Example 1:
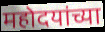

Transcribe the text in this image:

महोदयांच्या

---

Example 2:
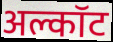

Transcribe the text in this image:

अल्कॉट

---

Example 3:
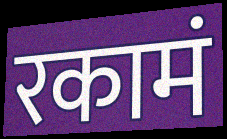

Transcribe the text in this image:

रकामं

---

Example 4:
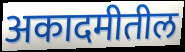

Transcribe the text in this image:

अकादमीतील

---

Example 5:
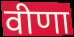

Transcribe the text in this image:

वीणा